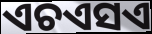
ଏଚଏସଏ